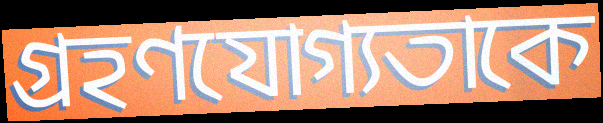
গ্রহণযোগ্যতাকে